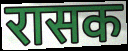
रासक